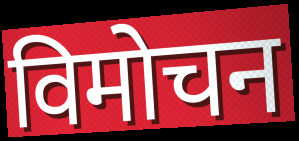
विमोचन